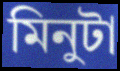
মিনুটা